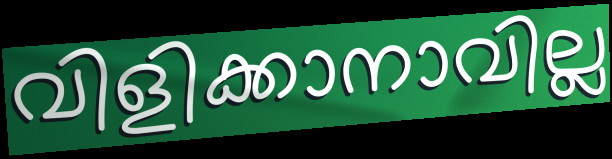
വിളിക്കാനാവില്ല